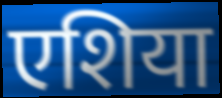
एशिया